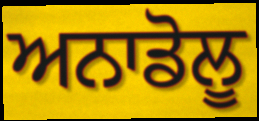
ਅਨਾਡੋਲੂ